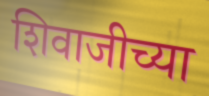
शिवाजीच्या